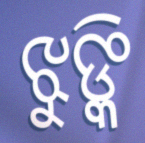
ଝୁଙ୍କି